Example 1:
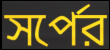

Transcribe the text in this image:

সর্পের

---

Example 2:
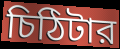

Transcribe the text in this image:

চিঠিটার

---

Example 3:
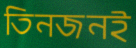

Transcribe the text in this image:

তিনজনই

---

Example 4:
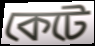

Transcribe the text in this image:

কেটে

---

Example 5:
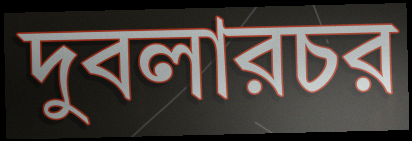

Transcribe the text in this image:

দুবলারচর